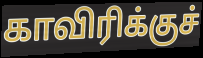
காவிரிக்குச்